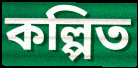
কল্পিত